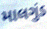
માલગુંડ